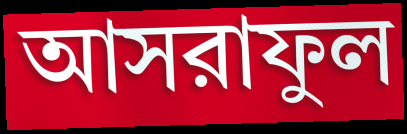
আসরাফুল